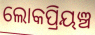
ଲୋକପ୍ରିୟଞ୍ଚ